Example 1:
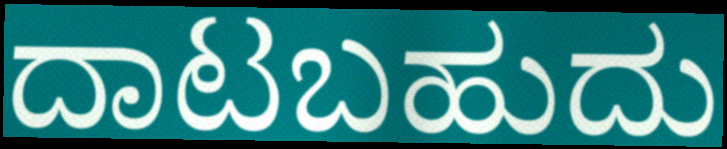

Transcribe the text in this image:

ದಾಟಬಹುದು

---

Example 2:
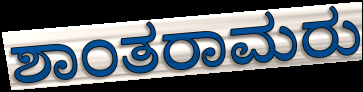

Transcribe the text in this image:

ಶಾಂತರಾಮರು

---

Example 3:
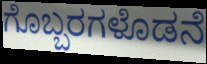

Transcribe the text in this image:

ಗೊಬ್ಬರಗಳೊಡನೆ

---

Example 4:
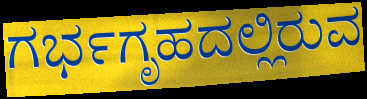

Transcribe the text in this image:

ಗರ್ಭಗೃಹದಲ್ಲಿರುವ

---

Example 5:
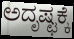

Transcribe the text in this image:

ಅದೃಷ್ಟಕ್ಕೆ